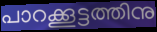
പാറക്കൂട്ടത്തിനു